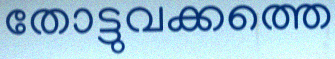
തോട്ടുവക്കത്തെ